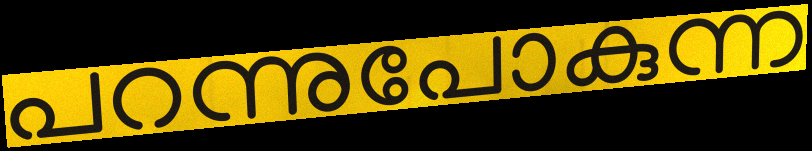
പറന്നുപോകുന്ന